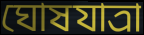
ঘোষযাত্রা